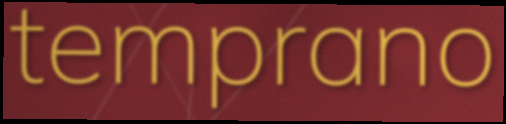
temprano